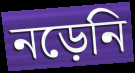
নড়েনি